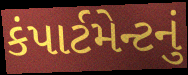
કંપાર્ટમેન્ટનું